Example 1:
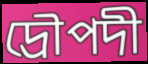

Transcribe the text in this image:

দ্রৌপদী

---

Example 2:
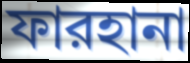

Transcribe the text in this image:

ফারহানা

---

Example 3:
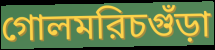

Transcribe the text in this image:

গোলমরিচগুঁড়া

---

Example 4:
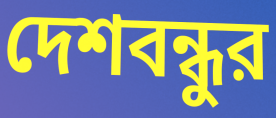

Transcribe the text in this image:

দেশবন্ধুর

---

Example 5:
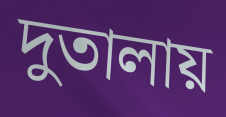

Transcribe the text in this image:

দুতালায়